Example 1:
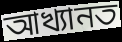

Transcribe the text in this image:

আখ্যানত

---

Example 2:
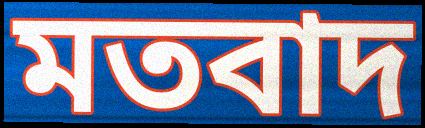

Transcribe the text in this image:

মতবাদ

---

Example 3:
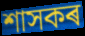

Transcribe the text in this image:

শাসকৰ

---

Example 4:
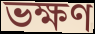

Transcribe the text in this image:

ভক্ষণ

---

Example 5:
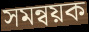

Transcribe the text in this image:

সমন্বয়ক